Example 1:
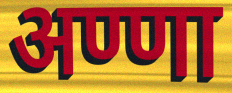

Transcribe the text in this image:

अण्णा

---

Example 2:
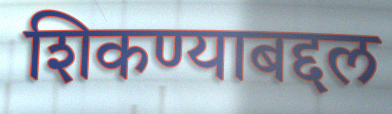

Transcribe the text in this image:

शिकण्याबद्दल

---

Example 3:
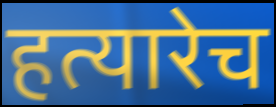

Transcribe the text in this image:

हत्यारेच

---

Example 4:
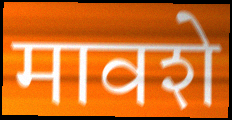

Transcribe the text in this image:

मावशे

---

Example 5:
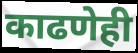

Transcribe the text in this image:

काढणेही